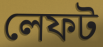
লেফট